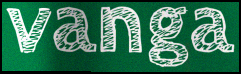
vanga